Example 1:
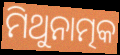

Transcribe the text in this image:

ମିଥୁନାତ୍ମକ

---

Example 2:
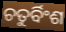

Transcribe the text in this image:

ଚତୁର୍ବିଂଶ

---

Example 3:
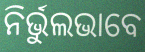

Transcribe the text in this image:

ନିର୍ଭୁଲଭାବେ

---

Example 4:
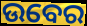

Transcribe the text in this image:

ଉବେର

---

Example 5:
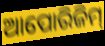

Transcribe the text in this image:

ଆପୋରିଜିମ୍